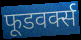
फूडवर्क्स